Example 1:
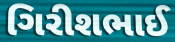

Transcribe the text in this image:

ગિરીશભાઈ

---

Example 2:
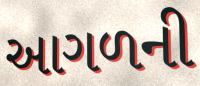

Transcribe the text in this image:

આગળની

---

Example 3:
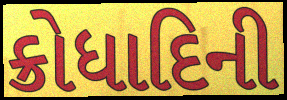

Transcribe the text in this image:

ક્રોધાદિની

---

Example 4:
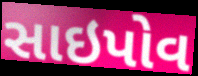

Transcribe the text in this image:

સાઇપોવ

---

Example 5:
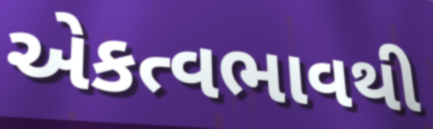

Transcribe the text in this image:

એકત્વભાવથી